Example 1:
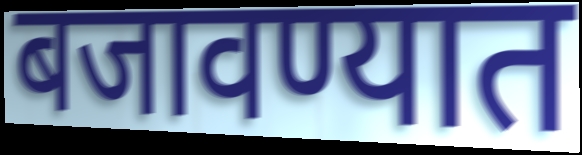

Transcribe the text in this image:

बजावण्यात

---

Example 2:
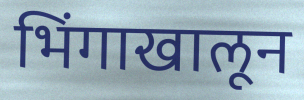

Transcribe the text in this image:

भिंगाखालून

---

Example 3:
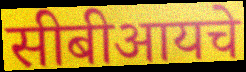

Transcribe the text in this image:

सीबीआयचे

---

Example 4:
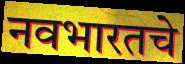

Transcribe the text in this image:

नवभारतचे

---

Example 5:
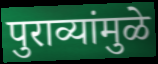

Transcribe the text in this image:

पुराव्यांमुळे